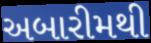
અબારીમથી